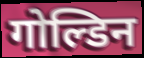
गोल्डिन